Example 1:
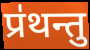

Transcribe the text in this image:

प्र॑थन्तु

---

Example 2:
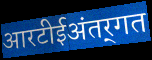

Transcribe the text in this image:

आरटीईअंतर्गत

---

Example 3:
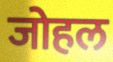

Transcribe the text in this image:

जोहल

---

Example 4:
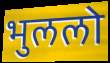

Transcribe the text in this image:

भुललो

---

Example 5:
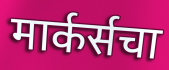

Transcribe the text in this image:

मार्कर्सचा